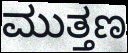
ಮುತ್ತಣ